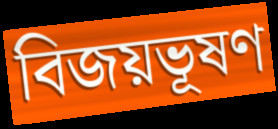
বিজয়ভূষণ